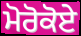
ਮੋਰੋਕੋਏ